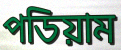
পডিয়াম